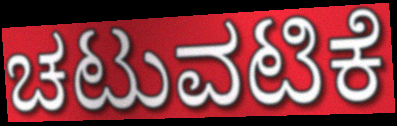
ಚಟುವಟಿಕೆ